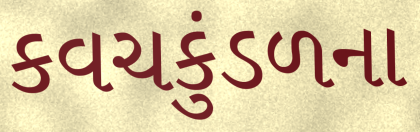
કવચકુંડળના